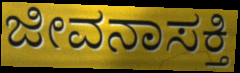
ಜೀವನಾಸಕ್ತಿ